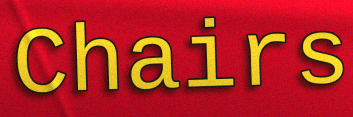
Chairs